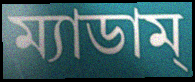
ম্যাডাম্